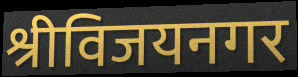
श्रीविजयनगर